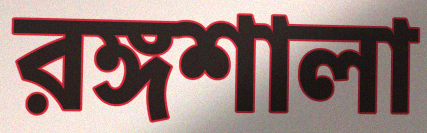
রঙ্গশালা